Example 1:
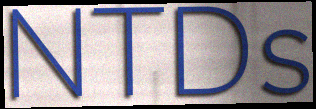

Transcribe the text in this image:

NTDs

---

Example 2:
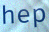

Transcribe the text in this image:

hep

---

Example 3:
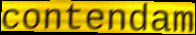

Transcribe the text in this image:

contendam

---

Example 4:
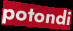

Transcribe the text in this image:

potondi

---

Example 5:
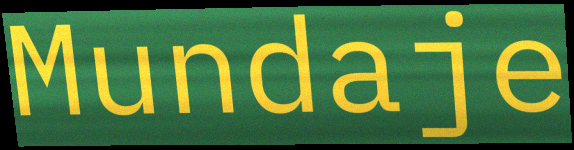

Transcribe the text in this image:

Mundaje